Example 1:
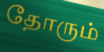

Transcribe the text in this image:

தோரும்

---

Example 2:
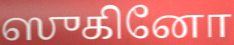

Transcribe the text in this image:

ஸுகினோ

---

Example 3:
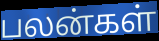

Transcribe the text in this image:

பலன்கள்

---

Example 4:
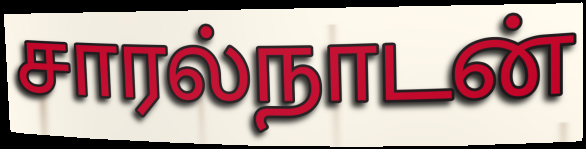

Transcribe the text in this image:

சாரல்நாடன்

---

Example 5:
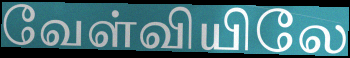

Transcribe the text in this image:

வேள்வியிலே